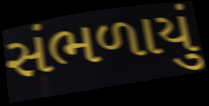
સંભળાયું